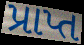
પ્રાપ્‍ત